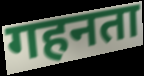
गहनता